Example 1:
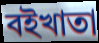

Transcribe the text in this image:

বইখাতা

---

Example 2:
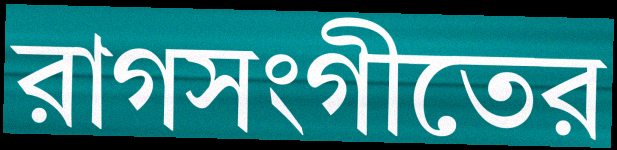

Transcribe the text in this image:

রাগসংগীতের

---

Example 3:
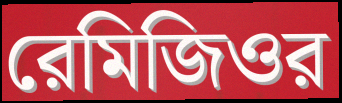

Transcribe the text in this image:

রেমিজিওর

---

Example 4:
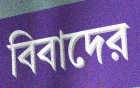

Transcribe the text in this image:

বিবাদের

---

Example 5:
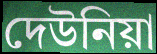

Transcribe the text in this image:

দেউনিয়া